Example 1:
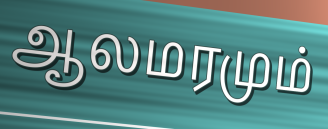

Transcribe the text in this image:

ஆலமரமும்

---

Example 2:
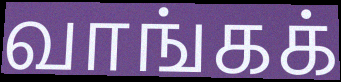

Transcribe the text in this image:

வாங்கக்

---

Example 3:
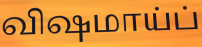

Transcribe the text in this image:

விஷமாய்ப்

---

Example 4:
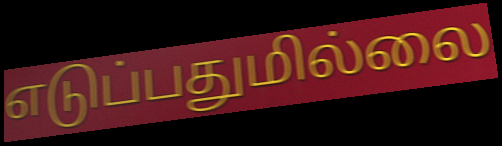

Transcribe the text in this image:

எடுப்பதுமில்லை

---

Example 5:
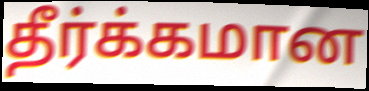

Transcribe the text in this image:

தீர்க்கமான